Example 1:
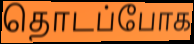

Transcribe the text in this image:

தொடப்போக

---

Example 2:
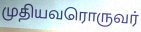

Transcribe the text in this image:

முதியவரொருவர்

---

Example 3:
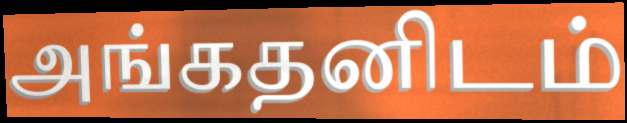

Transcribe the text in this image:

அங்கதனிடம்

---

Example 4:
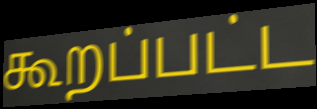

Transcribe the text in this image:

கூறப்பட்ட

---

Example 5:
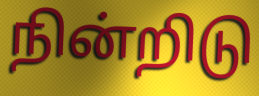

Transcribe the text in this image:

நின்றிடு